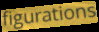
figurations